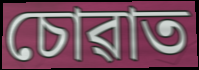
চোৱাত